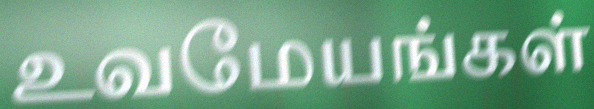
உவமேயங்கள்